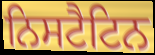
ਨਿਸਟੈਟਿਨ